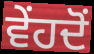
ਵੇਂਹਦੋਂ